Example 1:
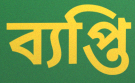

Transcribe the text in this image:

ব্যপ্তি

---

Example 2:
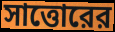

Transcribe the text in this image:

সাত্তোরের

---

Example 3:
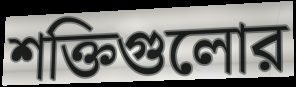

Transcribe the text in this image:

শক্তিগুলোর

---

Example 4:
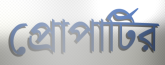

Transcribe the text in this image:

প্রোপার্টির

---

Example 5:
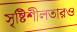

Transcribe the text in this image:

সৃষ্টিশীলতারও